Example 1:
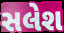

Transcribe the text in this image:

સલેશ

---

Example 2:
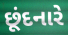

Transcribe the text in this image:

છૂંદનારે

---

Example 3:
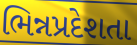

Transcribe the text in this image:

ભિન્નપ્રદેશતા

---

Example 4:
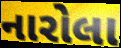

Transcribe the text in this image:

નારોલા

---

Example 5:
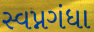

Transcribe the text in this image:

સ્વપ્નગંધા